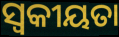
ସ୍ଵକୀୟତା